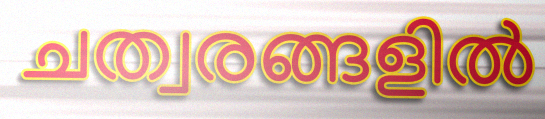
ചത്വരങ്ങളിൽ